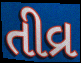
તીવ્ર